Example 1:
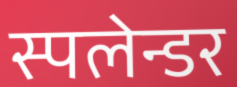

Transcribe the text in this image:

स्पलेन्डर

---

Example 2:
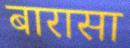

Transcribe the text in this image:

बारासा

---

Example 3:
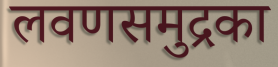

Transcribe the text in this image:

लवणसमुद्रका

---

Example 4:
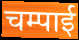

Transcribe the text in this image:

चम्‍पाई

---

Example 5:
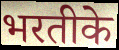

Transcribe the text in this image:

भरतीके